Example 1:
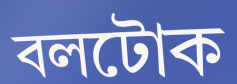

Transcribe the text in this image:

বলটোক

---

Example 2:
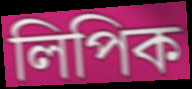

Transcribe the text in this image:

লিপিক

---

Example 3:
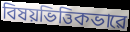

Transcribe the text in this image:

বিষয়ভিত্তিকভাৱে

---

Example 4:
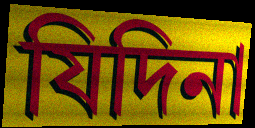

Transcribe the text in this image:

যিদিনা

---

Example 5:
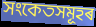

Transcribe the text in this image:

সংকেতসমূহৰ